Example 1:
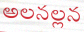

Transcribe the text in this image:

అలనల్లన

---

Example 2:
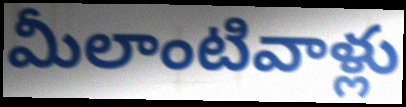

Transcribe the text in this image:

మీలాంటివాళ్లు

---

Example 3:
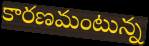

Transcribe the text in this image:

కారణమంటున్న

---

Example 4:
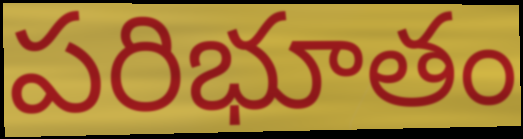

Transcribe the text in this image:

పరిభూతం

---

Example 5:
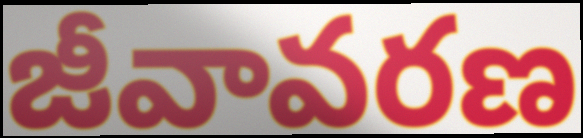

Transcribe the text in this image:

జీవావరణ